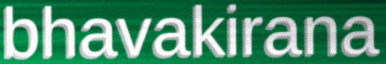
bhavakirana